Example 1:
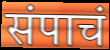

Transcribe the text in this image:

संपाचं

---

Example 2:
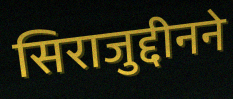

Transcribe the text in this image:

सिराजुद्दीनने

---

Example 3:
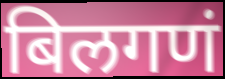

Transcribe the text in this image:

बिलगणं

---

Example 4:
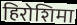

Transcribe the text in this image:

हिरोशिमा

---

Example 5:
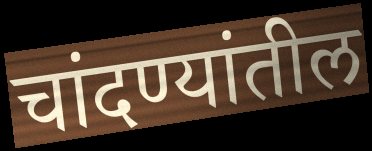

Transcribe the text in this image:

चांदण्यांतील